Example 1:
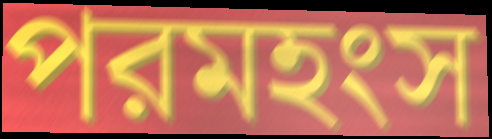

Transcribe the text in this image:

পরমহংস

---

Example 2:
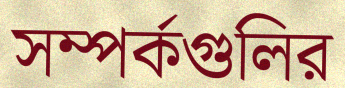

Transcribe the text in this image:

সম্পর্কগুলির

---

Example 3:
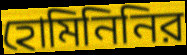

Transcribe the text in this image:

হোমিনিনির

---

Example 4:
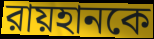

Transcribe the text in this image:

রায়হানকে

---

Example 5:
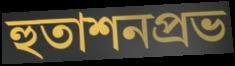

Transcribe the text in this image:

হুতাশনপ্রভ